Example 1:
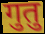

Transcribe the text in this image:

गुतु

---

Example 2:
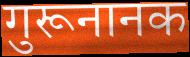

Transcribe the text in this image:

गुरूनानक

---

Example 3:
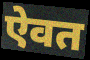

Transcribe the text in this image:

ऐवत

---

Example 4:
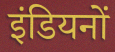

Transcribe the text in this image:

इंडियनों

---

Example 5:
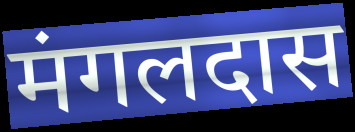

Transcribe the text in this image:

मंगलदास